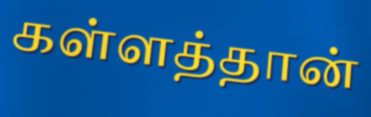
கள்ளத்தான்